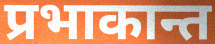
प्रभाकान्त